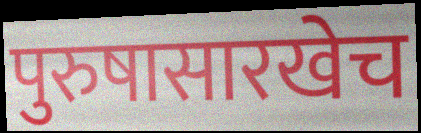
पुरुषासारखेच